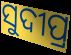
ସୁଦୀପ୍ର